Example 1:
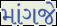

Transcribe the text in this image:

માંગજે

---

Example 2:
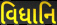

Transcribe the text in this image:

વિધાનિ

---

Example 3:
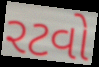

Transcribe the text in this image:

રટવો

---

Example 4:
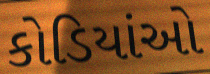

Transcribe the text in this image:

કોડિયાંઓ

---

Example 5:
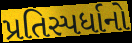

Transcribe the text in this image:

પ્રતિસ્પર્ધાનો